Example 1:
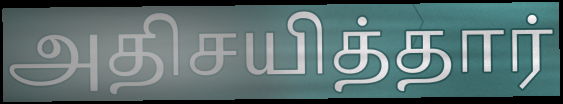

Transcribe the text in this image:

அதிசயித்தார்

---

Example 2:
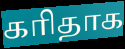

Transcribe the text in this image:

கரிதாக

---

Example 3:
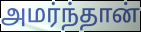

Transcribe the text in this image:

அமர்ந்தான்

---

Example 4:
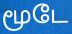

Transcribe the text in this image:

மூடே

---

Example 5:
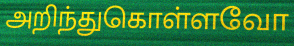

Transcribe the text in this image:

அறிந்துகொள்ளவோ